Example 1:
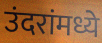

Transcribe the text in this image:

उंदरांमध्ये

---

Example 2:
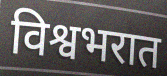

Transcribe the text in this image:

विश्वभरात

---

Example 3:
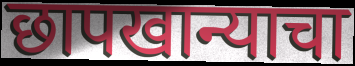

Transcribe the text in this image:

छापखान्याचा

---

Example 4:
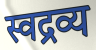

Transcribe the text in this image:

स्वद्रव्य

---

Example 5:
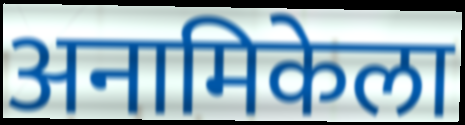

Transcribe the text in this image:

अनामिकेला